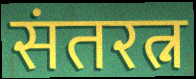
संतरत्न